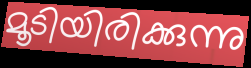
മൂടിയിരിക്കുന്നു